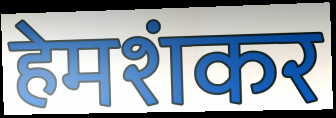
हेमशंकर